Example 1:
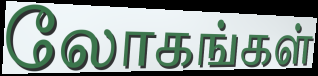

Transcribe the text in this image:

லோகங்கள்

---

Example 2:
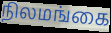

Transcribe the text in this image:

நிலமங்கை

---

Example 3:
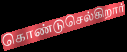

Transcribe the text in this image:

கொண்டுசெல்கிறார்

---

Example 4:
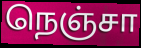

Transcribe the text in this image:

நெஞ்சா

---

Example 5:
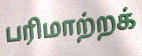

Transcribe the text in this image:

பரிமாற்றக்